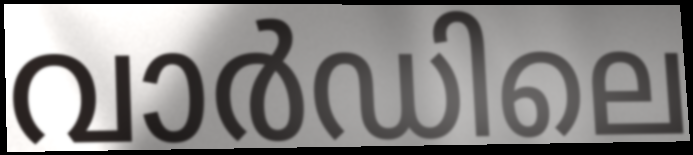
വാർഡിലെ